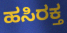
ಹಸಿರಕ್ತ